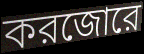
করজোরে